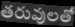
తరువులతో